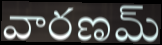
వారణమ్